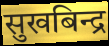
सुखबिन्द्र